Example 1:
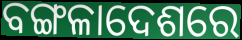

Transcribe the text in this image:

ବଙ୍ଗଳାଦେଶରେ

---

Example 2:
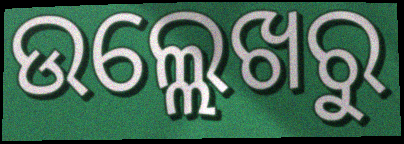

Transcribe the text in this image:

ଉଲ୍ଲେଖରୁ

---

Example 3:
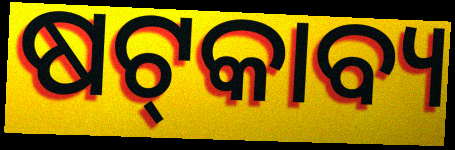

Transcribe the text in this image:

ଷଟ୍‌କାବ୍ୟ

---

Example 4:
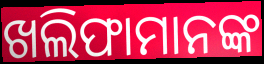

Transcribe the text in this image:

ଖଲିଫାମାନଙ୍କ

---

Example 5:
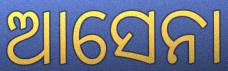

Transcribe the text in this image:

ଆସେନା